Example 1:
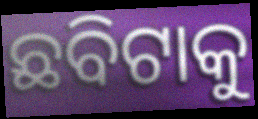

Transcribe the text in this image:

ଛବିଟାକୁ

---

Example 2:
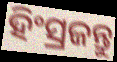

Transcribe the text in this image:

ହିଂସ୍ରଜନ୍ତୁ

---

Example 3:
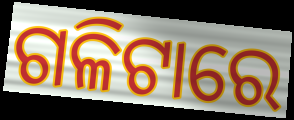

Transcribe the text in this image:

ଗଳିଟାରେ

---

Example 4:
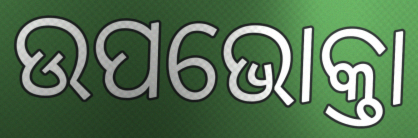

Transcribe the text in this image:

ଉପଭୋକ୍ତା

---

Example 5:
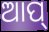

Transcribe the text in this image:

ଆପ୍